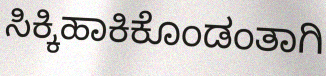
ಸಿಕ್ಕಿಹಾಕಿಕೊಂಡಂತಾಗಿ